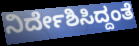
ನಿರ್ದೇಶಿಸಿದ್ದಂತೆ